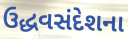
ઉદ્ધવસંદેશના